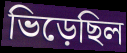
ভিড়েছিল